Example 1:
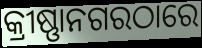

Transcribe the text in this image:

କ୍ରୀଷ୍ଣାନଗରଠାରେ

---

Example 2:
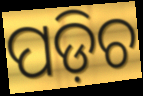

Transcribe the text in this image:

ପଡ଼ିଚ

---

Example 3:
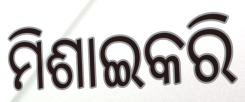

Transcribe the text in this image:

ମିଶାଇକରି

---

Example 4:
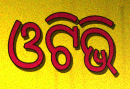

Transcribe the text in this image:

ଓଟିଭି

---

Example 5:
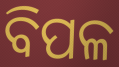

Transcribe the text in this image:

ବିପଳ